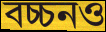
বচ্চনও